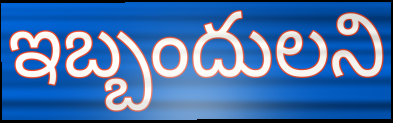
ఇబ్బందులని